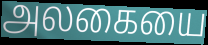
அலகையை